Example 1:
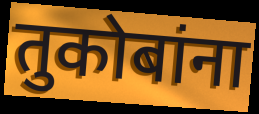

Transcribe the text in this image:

तुकोबांना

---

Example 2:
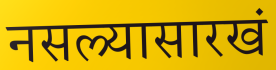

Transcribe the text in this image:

नसल्यासारखं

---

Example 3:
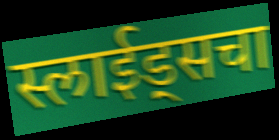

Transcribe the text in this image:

स्लाईड्सचा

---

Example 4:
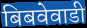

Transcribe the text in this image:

बिबवेवाडी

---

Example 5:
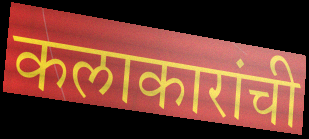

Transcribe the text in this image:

कलाकारांची